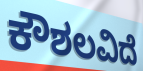
ಕೌಶಲವಿದೆ